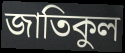
জাতিকুল